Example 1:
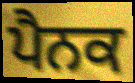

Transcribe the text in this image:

ਪੈਨਕ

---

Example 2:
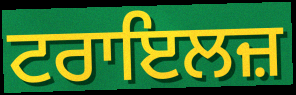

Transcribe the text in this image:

ਟਰਾਇਲਜ਼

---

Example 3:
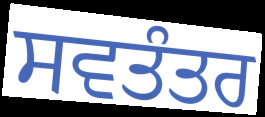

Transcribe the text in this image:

ਸਵਤੰਤਰ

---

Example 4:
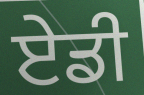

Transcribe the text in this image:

ਏਡੀ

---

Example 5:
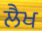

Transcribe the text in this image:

ਲੈਖ